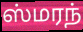
ஸ்மரந்